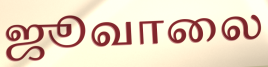
ஜூவாலை